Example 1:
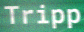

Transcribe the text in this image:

Tripp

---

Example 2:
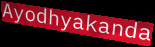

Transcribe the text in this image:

Ayodhyakanda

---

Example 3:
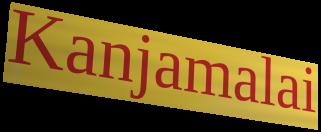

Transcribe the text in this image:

Kanjamalai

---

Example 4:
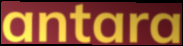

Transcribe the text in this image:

antara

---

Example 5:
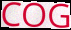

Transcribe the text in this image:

COG